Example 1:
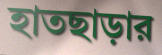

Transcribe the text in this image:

হাতছাড়ার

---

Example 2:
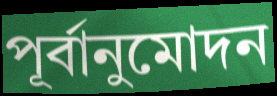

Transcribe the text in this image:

পূর্বানুমোদন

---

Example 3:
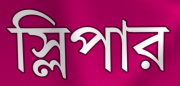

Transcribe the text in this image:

স্লিপার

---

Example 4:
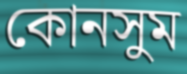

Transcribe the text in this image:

কোনসুম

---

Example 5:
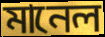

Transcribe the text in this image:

মানেল